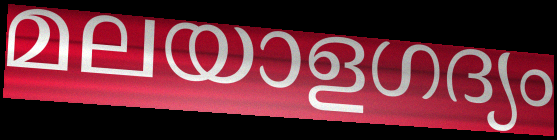
മലയാളഗദ്യം